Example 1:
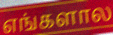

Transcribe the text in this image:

எங்களால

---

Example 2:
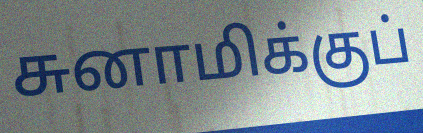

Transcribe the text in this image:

சுனாமிக்குப்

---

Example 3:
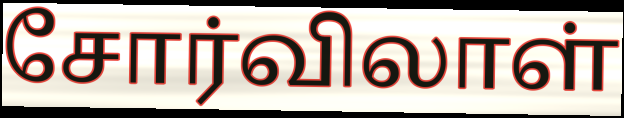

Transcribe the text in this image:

சோர்விலாள்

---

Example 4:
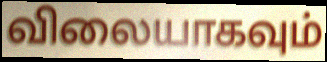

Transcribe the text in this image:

விலையாகவும்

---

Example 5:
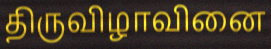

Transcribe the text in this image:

திருவிழாவினை